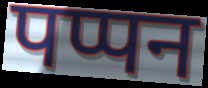
पप्पन